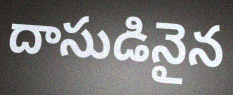
దాసుడినైన